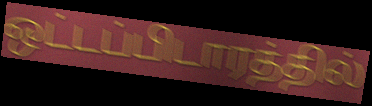
ஒட்டப்பிடாரத்தில்